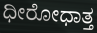
ಧೀರೋಧಾತ್ತ